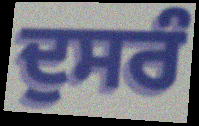
ਦੁਸਰੰ